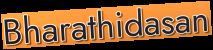
Bharathidasan